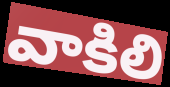
వాకిలి